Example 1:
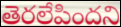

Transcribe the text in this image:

తెరలేపిందని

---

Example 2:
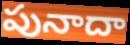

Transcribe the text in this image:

పునాదా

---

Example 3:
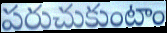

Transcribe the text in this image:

పరుచుకుంటాం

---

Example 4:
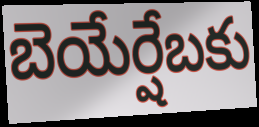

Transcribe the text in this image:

బెయేర్షేబకు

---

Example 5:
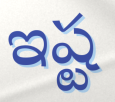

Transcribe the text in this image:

ఇష్ట